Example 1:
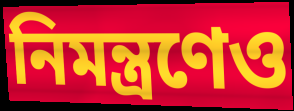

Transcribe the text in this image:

নিমন্ত্রণেও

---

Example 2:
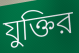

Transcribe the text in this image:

যুক্তির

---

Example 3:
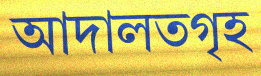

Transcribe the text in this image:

আদালতগৃহ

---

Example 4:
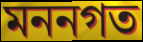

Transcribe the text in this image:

মননগত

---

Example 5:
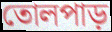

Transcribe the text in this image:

তোলপাড়